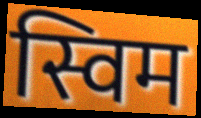
स्विम